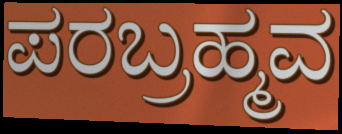
ಪರಬ್ರಹ್ಮವ